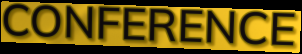
CONFERENCE